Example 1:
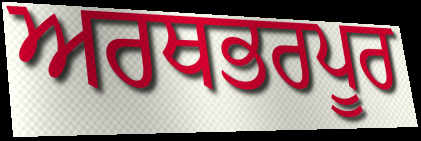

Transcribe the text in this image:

ਅਰਥਭਰਪੂਰ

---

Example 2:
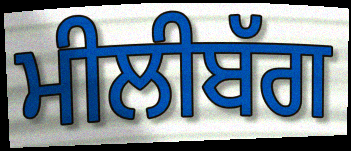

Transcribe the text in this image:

ਮੀਲੀਬੱਗ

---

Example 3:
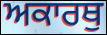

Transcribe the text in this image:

ਅਕਾਰਥੁ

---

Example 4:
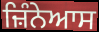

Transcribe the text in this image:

ਜ਼ਿੰਨੇਆਸ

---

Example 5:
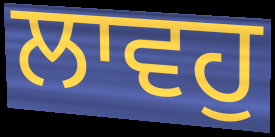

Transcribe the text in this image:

ਲਾਵਹੁ